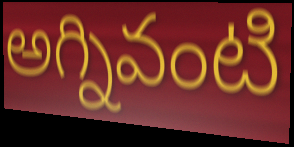
అగ్నివంటి